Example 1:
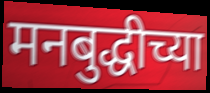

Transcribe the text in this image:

मनबुद्धीच्या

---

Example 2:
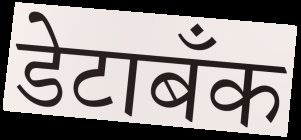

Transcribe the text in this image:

डेटाबँक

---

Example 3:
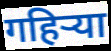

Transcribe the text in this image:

गहिऱ्या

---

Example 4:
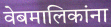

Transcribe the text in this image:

वेबमालिकांना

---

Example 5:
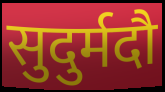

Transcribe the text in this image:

सुदुर्मदौ